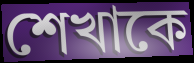
শেখাকে